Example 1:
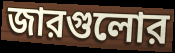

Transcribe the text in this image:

জারগুলোর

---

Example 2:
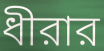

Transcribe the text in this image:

ধীরার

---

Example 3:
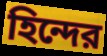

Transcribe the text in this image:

হিন্দের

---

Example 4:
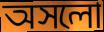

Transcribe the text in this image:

অসলো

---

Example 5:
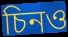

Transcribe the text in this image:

চিনও